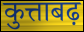
कुत्ताबढ़